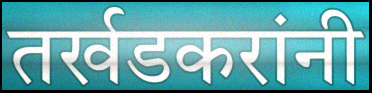
तर्खडकरांनी